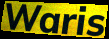
Waris